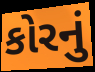
કોરનું